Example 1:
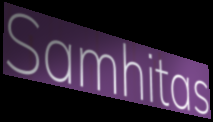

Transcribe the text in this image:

Samhitas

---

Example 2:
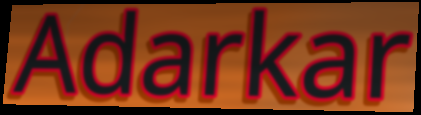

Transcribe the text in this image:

Adarkar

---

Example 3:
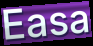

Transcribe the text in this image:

Easa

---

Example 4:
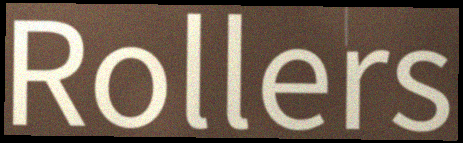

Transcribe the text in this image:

Rollers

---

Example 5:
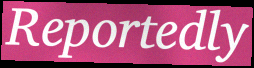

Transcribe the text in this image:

Reportedly